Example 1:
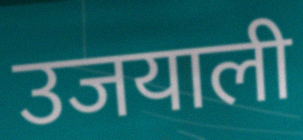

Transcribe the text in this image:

उजयाली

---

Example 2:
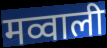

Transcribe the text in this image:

मव्वाली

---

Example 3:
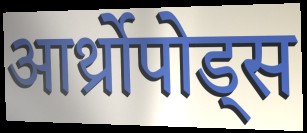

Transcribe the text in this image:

आर्थ्रोपोड्स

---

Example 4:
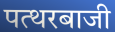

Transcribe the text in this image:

पत्‍थरबाजी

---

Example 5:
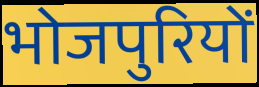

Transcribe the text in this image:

भोजपुरियों